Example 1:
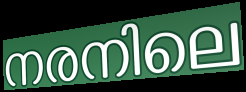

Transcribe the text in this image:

നരനിലെ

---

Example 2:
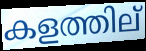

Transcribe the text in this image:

കളത്തില്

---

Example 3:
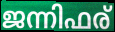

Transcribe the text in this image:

ജന്നിഫര്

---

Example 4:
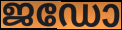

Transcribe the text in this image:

ജഡോ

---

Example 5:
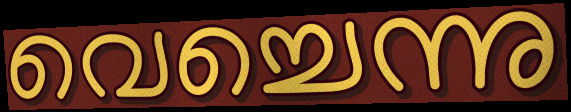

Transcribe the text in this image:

വെച്ചെന്നു